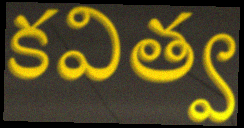
కవిత్వ